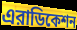
এরাডিকেশন